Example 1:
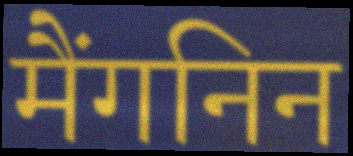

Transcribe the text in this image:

मैंगनिन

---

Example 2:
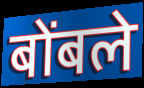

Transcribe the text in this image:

बोंबले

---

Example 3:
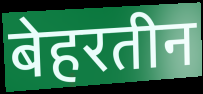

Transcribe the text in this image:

बेहरतीन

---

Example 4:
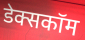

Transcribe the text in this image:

डेक्सकॉम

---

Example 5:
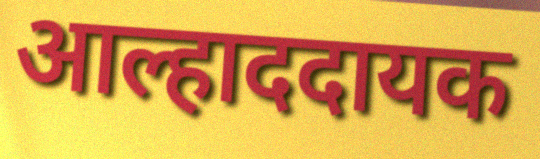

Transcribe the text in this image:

आल्हाददायक